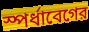
স্পর্ধাবেগের